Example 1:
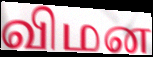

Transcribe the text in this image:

விமன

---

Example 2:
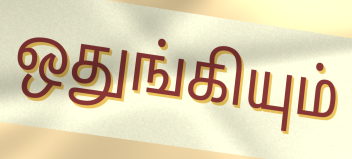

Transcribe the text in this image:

ஒதுங்கியும்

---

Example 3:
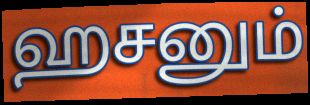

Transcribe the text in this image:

ஹசனும்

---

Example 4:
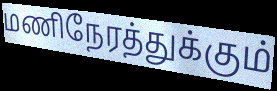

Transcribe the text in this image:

மணிநேரத்துக்கும்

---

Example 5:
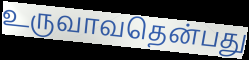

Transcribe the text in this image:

உருவாவதென்பது